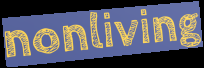
nonliving